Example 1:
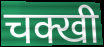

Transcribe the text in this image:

चक्खी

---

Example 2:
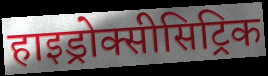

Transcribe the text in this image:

हाइड्रोक्सीसिट्रिक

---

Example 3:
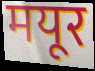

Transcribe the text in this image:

मयूर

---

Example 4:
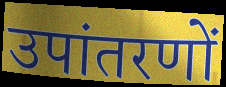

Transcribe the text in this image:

उपांतरणों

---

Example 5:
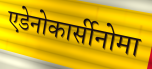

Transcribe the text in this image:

एडेनोकार्सीनोमा